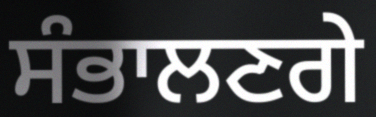
ਸੰਭਾਲਣਗੇ